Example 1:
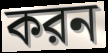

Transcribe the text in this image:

করন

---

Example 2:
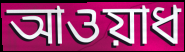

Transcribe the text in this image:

আওয়াধ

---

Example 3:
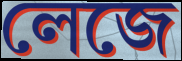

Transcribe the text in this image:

লেজে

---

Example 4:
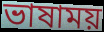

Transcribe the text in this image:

ভাষাময়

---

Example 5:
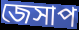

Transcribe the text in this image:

জেসাপ